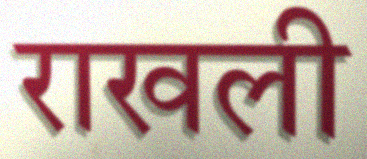
राखली